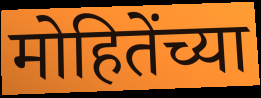
मोहितेंच्या